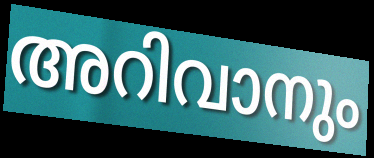
അറിവാനും